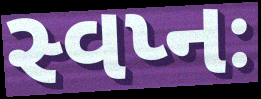
સ્વપ્નઃ